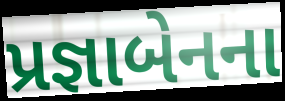
પ્રજ્ઞાબેનના